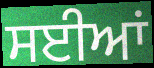
ਸਈਆਂ